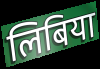
लिबिया